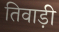
तिवाड़ी